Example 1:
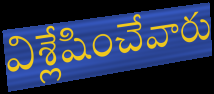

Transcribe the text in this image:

విశ్లేషించేవారు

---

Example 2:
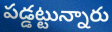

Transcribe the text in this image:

పడ్డట్టున్నారు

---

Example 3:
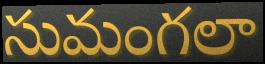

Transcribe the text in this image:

సుమంగలా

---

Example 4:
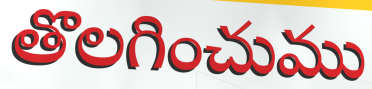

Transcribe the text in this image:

తొలగించుము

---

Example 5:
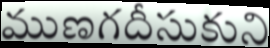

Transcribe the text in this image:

ముణగదీసుకుని